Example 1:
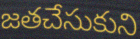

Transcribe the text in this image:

జతచేసుకుని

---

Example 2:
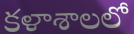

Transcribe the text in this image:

కళాశాలలో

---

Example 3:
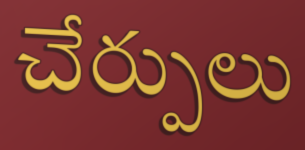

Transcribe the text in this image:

చేర్పులు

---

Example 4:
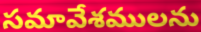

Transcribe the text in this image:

సమావేశములను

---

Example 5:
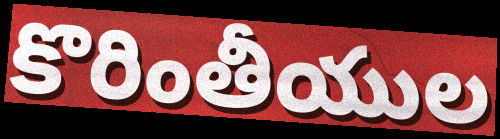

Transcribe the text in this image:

కొరింతీయుల